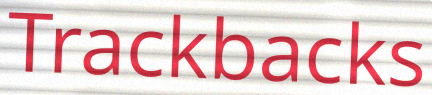
Trackbacks